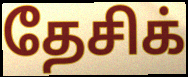
தேசிக்